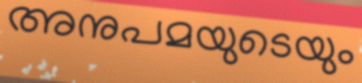
അനുപമയുടെയും